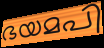
ഭയമപി